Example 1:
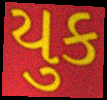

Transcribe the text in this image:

યુક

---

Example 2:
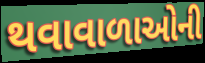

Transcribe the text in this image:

થવાવાળાઓની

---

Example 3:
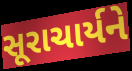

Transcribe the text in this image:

સૂરાચાર્યને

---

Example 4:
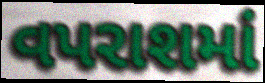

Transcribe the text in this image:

વપરાશમાં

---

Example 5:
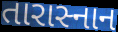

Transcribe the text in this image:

તારાસ્નાન